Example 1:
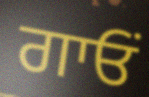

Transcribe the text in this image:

ਗਾਓਂ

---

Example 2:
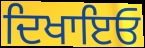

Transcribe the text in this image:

ਦਿਖਾਇਓ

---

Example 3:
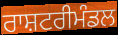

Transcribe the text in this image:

ਰਾਸ਼ਟਰੀਮੰਡਲ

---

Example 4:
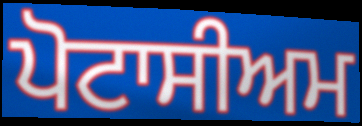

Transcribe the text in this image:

ਪੋਟਾਸੀਅਮ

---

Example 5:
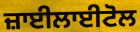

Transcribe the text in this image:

ਜ਼ਾਈਲਾਈਟੋਲ